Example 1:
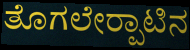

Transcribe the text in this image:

ತೊಗಲೇರ‍್ಪಾಟಿನ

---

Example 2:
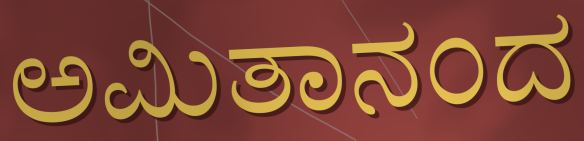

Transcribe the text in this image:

ಅಮಿತಾನಂದ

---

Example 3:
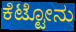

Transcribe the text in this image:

ಕೆಟ್ಟೋನು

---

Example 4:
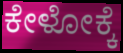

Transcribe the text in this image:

ಕೇಳೋಕ್ಕೆ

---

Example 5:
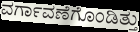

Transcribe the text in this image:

ವರ್ಗಾವಣೆಗೊಂಡಿತ್ತು